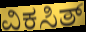
ವಿಕಸಿತ್